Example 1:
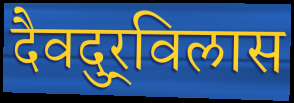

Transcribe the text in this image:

दैवदुर्विलास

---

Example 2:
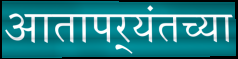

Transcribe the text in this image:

आतापर्यंतच्या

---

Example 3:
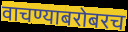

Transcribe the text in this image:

वाचण्याबरोबरच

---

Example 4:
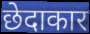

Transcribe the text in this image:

छेदाकार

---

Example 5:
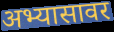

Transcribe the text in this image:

अभ्यासावर